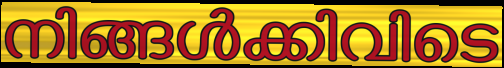
നിങ്ങൾക്കിവിടെ